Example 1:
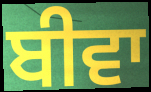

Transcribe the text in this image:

ਬੀਵਾ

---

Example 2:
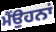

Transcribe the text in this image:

ਮੈਂਉਹਨਾਂ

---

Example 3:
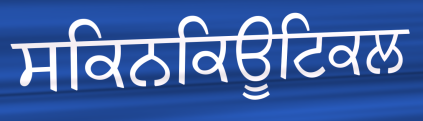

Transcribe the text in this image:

ਸਕਿਨਕਿਊਟਿਕਲ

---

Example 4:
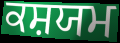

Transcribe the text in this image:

ਕਸ਼ਯਮ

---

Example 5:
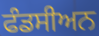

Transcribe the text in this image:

ਫੰਡਸੀਅਨ